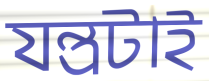
যন্ত্রটাই